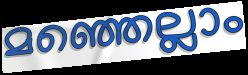
മഞ്ഞെല്ലാം